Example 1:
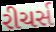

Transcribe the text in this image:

રીચર્સ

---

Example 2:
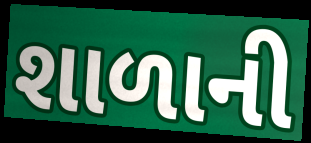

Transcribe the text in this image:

શાળાની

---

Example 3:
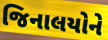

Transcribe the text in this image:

જિનાલયોને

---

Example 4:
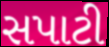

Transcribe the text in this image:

સપાટી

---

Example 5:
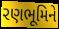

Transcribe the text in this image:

રણભૂમિને